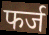
फर्ज